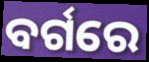
ବର୍ଗରେ